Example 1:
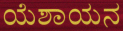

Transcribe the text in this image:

ಯೆಶಾಯನ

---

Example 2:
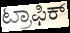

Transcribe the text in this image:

ಟ್ರಾಫಿಕ್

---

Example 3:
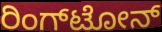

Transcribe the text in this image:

ರಿಂಗ್‌ಟೋನ್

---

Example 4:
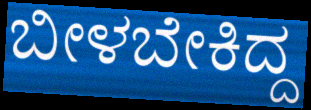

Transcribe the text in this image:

ಬೀಳಬೇಕಿದ್ದ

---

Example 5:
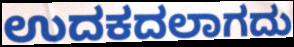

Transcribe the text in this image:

ಉದಕದಲಾಗದು